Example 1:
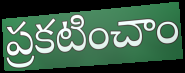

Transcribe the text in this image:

ప్రకటించాం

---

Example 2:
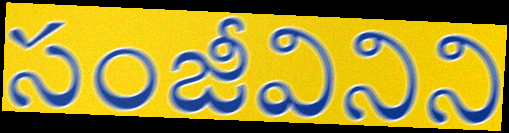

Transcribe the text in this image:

సంజీవినిని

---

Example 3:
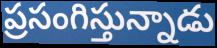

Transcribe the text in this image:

ప్రసంగిస్తున్నాడు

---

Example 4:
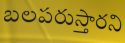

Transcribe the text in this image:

బలపరుస్తారని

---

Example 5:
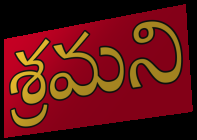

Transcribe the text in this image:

శ్రమని